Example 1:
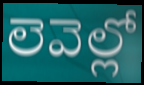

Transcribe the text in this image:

లెవెల్లో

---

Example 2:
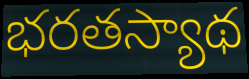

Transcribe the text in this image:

భరతస్యాథ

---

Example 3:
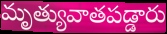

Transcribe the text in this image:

మృత్యువాతపడ్డారు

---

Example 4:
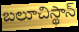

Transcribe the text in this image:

బలూచిస్థాన్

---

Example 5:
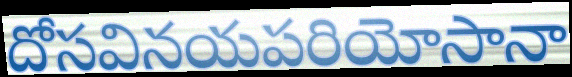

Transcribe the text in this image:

దోసవినయపరియోసానా